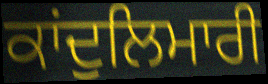
ਕਾਂਦੁਲਿਮਾਰੀ